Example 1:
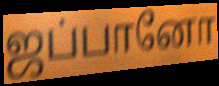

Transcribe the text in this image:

ஜப்பானோ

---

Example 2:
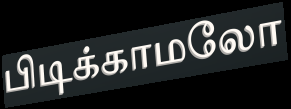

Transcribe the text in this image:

பிடிக்காமலோ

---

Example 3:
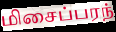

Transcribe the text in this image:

மிசைப்பரந்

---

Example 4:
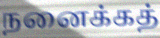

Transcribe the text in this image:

நனைக்கத்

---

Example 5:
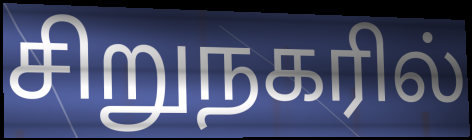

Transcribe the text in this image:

சிறுநகரில்